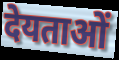
देयताओं